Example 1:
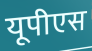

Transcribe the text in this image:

यूपीएस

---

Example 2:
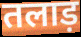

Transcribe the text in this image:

तलाड़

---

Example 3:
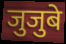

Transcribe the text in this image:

जुजुबे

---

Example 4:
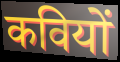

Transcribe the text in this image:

कवियों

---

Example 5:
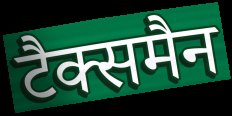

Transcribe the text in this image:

टैक्समैन